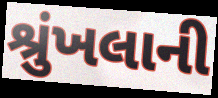
શ્રુંખલાની